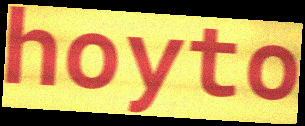
hoyto